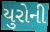
યુરોની